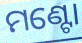
ମଣ୍ଟୋ